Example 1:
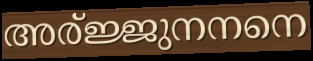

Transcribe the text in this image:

അര്ജ്ജുനനനെ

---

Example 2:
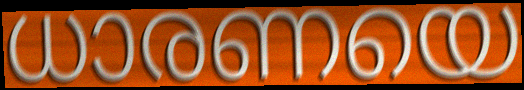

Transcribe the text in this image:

ധാരണയെ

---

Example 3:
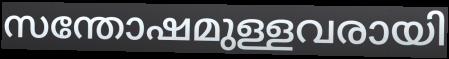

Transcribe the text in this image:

സന്തോഷമുള്ളവരായി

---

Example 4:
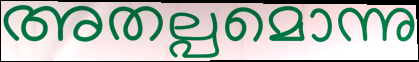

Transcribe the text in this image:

അതല്പമൊന്നു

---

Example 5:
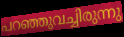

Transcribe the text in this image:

പറഞ്ഞുവച്ചിരുന്നു